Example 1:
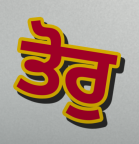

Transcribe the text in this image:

ਤੋਰੁ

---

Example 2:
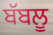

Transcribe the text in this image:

ਬੱਬਲੂ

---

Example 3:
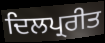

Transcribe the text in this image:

ਦਿਲਪ੍ਰਰੀਤ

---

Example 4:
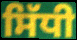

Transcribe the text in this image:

ਸਿੱਧੀ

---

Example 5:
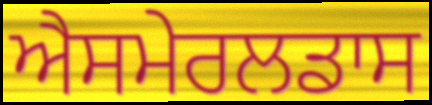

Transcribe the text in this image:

ਐਸਮੇਰਲਡਾਸ